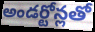
అండర్టోన్లతో